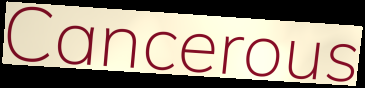
Cancerous